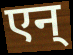
एन्